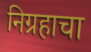
निग्रहाचा